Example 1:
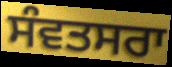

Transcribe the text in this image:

ਸੰਵਤਸਰਾ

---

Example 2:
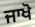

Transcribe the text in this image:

ਜਾਖੋ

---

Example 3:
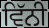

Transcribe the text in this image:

ਵਿੱਨੀ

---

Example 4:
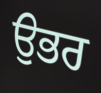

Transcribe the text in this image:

ਉਭਰ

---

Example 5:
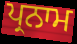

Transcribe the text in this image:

ਪ੍ਰਨਾਮ